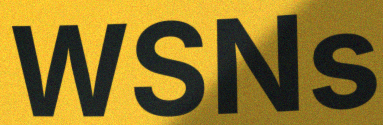
WSNs